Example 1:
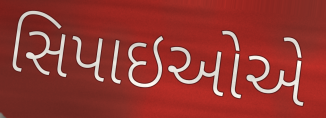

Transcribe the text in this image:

સિપાઇઓએ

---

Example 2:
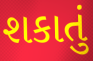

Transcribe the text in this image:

શકાતું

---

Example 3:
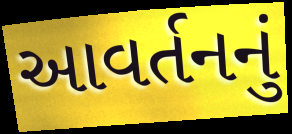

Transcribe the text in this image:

આવર્તનનું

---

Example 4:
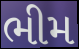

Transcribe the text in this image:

ભીમ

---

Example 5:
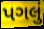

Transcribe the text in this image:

પગલું